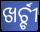
ଖର୍ଚ୍ଚୀ